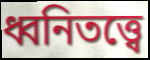
ধ্বনিতত্ত্বে